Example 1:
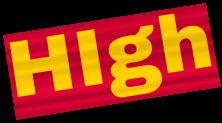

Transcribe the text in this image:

HIgh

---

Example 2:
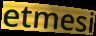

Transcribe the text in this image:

etmesi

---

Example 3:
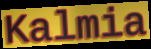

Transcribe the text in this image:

Kalmia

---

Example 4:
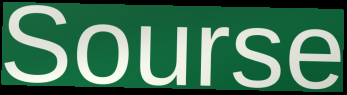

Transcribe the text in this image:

Sourse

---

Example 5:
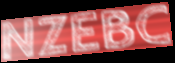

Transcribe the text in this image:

NZEBC